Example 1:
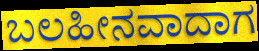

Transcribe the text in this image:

ಬಲಹೀನವಾದಾಗ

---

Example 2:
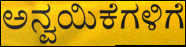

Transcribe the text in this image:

ಅನ್ವಯಿಕೆಗಳಿಗೆ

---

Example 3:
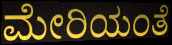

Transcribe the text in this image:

ಮೇರಿಯಂತೆ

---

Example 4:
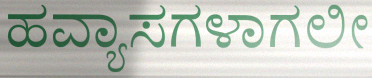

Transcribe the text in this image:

ಹವ್ಯಾಸಗಳಾಗಲೀ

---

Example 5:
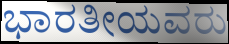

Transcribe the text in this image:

ಭಾರತೀಯವರು